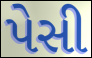
પેસી